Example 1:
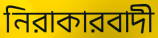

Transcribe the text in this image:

নিরাকারবাদী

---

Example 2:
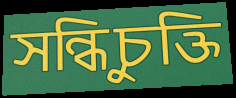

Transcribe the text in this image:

সন্ধিচুক্তি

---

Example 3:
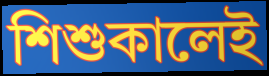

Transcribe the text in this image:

শিশুকালেই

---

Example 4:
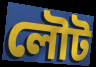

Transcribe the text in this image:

লৌট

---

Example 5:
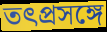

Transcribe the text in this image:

তৎপ্রসঙ্গে